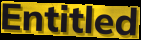
Entitled